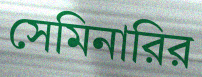
সেমিনারির